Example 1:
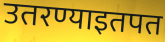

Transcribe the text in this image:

उतरण्याइतपत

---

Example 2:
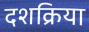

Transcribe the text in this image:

दशक्रिया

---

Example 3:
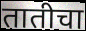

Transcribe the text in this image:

तातीचा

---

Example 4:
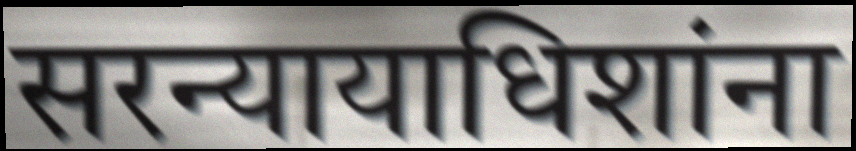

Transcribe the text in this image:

सरन्यायाधिशांना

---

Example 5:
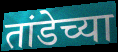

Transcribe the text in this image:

तांडेच्या